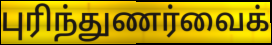
புரிந்துணர்வைக்